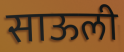
साऊली